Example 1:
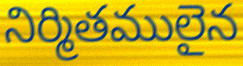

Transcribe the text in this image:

నిర్మితములైన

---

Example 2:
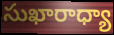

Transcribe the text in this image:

సుఖారాధ్యా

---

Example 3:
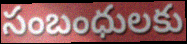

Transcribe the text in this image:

సంబంధులకు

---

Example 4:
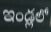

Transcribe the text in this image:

ఇండ్లలో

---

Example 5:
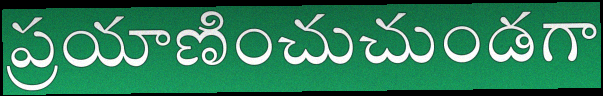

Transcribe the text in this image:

ప్రయాణించుచుండగా